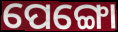
ପେଙ୍ଗୋ